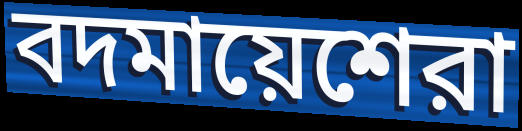
বদমায়েশেরা